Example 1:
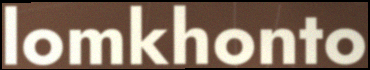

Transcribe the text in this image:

lomkhonto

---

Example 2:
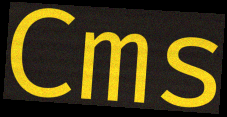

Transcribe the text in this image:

Cms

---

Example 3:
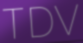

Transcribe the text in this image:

TDV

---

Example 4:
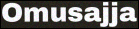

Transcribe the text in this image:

Omusajja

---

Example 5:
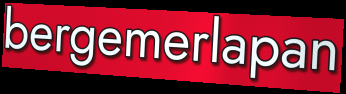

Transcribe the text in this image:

bergemerlapan